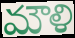
మౌళి